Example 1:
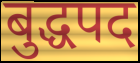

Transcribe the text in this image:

बुद्धपद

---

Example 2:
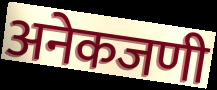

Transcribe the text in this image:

अनेकजणी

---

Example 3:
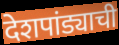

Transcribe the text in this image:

देशपांड्याची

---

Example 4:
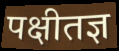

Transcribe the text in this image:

पक्षीतज्ञ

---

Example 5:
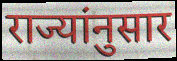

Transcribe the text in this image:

राज्यांनुसार